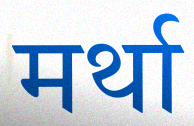
मर्था